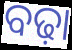
ବଢ଼ା